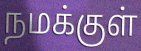
நமக்குள்